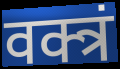
वक्त्रं